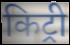
किट्री